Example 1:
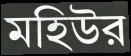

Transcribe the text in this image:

মহিউর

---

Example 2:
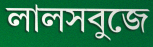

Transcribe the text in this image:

লালসবুজে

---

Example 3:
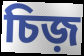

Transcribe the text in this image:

চিজ়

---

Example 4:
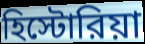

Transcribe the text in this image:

হিস্টোরিয়া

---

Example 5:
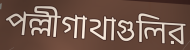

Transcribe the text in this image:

পল্লীগাথাগুলির